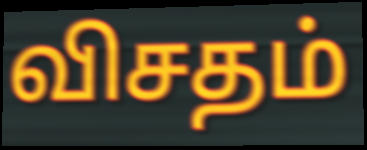
விசதம்